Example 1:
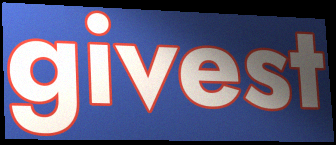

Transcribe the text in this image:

givest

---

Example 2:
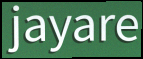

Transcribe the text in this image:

jayare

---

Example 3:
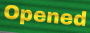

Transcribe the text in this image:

Opened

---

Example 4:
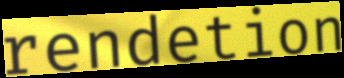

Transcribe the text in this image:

rendetion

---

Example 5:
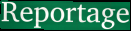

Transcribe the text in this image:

Reportage